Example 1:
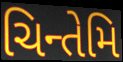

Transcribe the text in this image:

ચિન્તેમિ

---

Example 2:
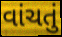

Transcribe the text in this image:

વાંચતું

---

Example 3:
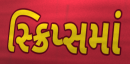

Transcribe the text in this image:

સ્ક્રિપ્સમાં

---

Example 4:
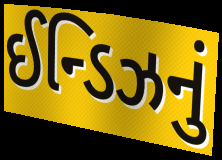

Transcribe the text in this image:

ઈન્ડિઝનું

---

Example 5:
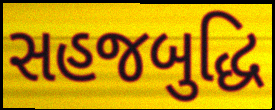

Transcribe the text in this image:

સહજબુદ્ધિ